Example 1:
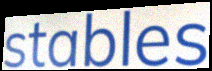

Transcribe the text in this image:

stables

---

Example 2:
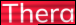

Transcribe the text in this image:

Thera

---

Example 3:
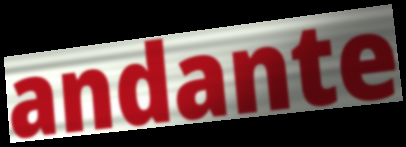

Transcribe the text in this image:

andante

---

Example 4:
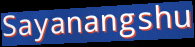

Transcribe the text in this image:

Sayanangshu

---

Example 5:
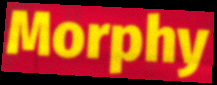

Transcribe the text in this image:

Morphy